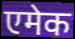
एमेक